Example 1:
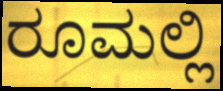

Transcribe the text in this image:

ರೂಮಲ್ಲಿ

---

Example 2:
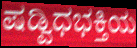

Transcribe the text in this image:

ಷಡ್ವಿಧಭಕ್ತಿಯ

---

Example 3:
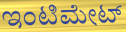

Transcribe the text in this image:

ಇಂಟಿಮೇಟ್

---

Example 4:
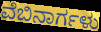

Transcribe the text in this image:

ವೆಬಿನಾರ್ಗಳು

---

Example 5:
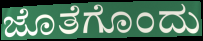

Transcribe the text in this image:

ಜೊತೆಗೊಂದು